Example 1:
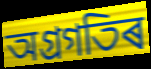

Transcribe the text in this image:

অগ্ৰগতিৰ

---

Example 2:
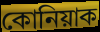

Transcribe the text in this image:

কোনিয়াক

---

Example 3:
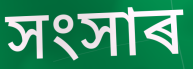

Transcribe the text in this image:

সংসাৰ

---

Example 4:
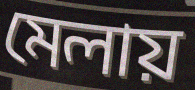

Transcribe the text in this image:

মেলায়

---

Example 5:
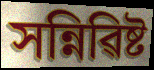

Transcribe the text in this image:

সন্নিৱিষ্ট